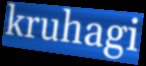
kruhagi